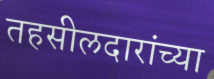
तहसीलदारांच्या